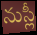
నుస్లీ